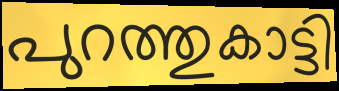
പുറത്തുകാട്ടി